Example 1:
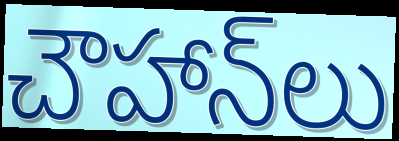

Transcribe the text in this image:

చౌహాన్‌లు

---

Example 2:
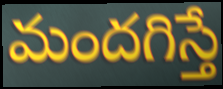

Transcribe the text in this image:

మందగిస్తే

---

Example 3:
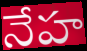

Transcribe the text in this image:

నేహ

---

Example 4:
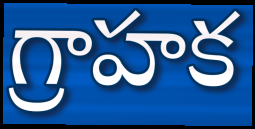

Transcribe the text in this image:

గ్రాహక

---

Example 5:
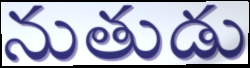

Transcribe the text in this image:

నుతుడు